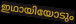
ഇഥായിയോടും